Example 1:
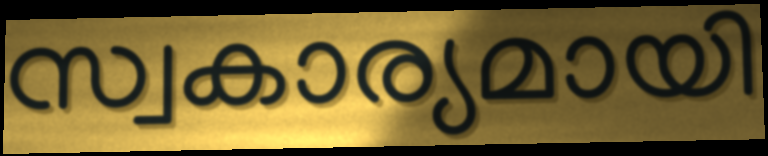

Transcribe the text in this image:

സ്വകാര്യമായി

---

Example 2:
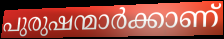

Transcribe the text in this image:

പുരുഷന്മാർക്കാണ്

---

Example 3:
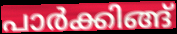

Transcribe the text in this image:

പാർക്കിങ്ങ്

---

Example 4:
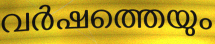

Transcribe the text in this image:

വർഷത്തെയും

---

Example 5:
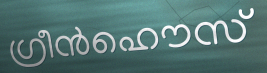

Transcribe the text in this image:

ഗ്രീൻഹൌസ്